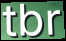
tbr